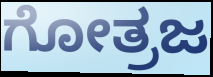
ಗೋತ್ರಜ